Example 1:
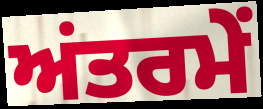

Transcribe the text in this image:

ਅਂਤਰਮੇਂ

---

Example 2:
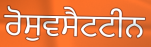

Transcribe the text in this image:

ਰੋਸੁਵਸੈਟਟੀਨ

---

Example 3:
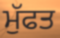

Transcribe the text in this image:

ਮੁੱਫਤ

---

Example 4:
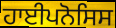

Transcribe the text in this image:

ਹਾਈਪਨੋਸਿਸ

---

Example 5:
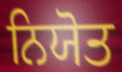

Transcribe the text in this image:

ਨਿਯੋਤ